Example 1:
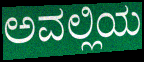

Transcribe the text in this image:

ಅವಲ್ಲಿಯ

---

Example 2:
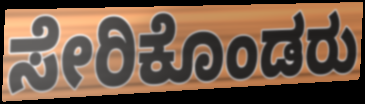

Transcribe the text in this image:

ಸೇರಿಕೊಂಡರು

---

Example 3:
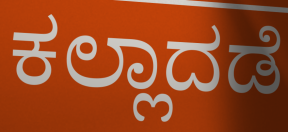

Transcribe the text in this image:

ಕಲ್ಲಾದಡೆ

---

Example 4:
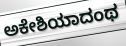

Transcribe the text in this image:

ಅಕೇಶಿಯಾದಂಥ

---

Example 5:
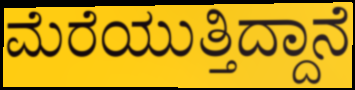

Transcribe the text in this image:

ಮೆರೆಯುತ್ತಿದ್ದಾನೆ